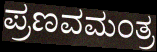
ಪ್ರಣವಮಂತ್ರ